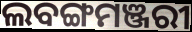
ଲବଙ୍ଗମଞ୍ଜରୀ